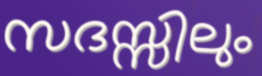
സദസ്സിലും